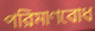
পরিমাণবোধ